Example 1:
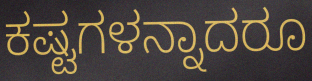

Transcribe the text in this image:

ಕಷ್ಟಗಳನ್ನಾದರೂ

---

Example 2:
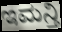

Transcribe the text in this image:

ಇಮನ್ತಿ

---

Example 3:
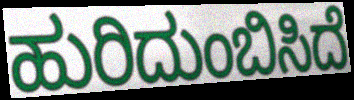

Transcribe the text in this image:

ಹುರಿದುಂಬಿಸಿದೆ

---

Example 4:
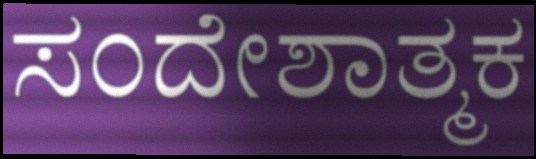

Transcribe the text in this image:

ಸಂದೇಶಾತ್ಮಕ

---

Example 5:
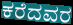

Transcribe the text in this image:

ಕರೆದವರ